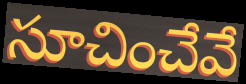
సూచించేవే